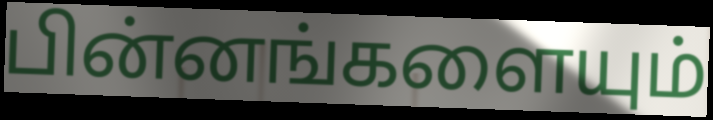
பின்னங்களையும்